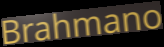
Brahmano